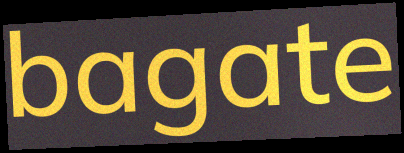
bagate